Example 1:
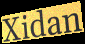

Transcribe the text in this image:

Xidan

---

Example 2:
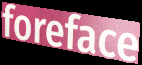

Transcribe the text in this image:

foreface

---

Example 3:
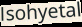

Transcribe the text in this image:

Isohyetal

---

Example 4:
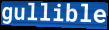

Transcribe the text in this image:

gullible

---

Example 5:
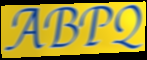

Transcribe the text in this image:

ABPQ